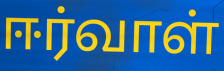
ஈர்வாள்